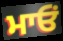
ਮਾਓਂ